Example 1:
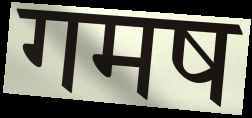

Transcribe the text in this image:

गमष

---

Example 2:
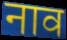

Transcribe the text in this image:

नाव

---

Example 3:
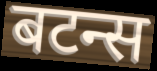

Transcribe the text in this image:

बटन्स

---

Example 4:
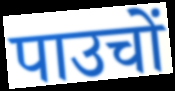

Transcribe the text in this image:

पाउचों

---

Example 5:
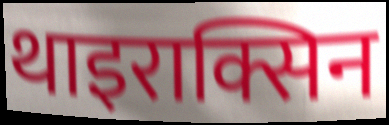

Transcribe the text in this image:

थाइराक्सिन